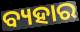
ବ୍ୟହାର